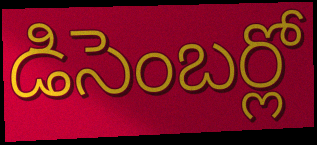
డిసెంబర్లో